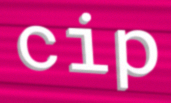
cip